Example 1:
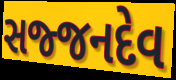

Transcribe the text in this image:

સજ્જનદેવ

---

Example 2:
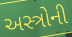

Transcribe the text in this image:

અસ્ત્રોની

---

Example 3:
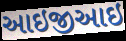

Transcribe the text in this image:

આઇજીઆઇ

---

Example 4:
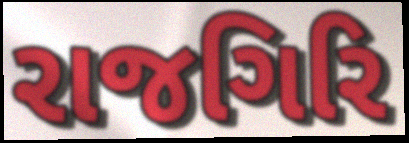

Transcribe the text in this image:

રાજગિરિ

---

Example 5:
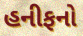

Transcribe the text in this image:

હનીફનો